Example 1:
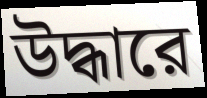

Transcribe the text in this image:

উদ্ধারে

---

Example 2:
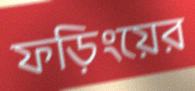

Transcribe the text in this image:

ফড়িংয়ের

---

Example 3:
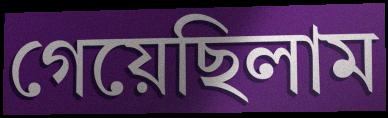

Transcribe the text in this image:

গেয়েছিলাম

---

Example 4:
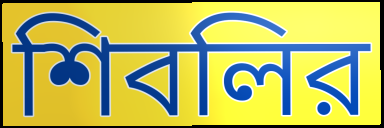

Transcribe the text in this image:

শিবলির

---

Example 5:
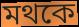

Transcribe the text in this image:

মথকে